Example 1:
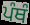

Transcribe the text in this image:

ਪੰਥੰ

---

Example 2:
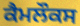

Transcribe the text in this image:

ਕੈਮਲੌਕਸ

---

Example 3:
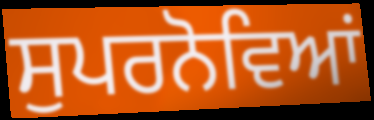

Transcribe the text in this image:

ਸੁਪਰਨੋਵਿਆਂ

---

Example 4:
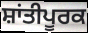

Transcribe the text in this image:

ਸ਼ਾਂਤੀਪੂਰਕ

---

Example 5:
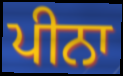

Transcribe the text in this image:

ਪੀਨਾ